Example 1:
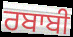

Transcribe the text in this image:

ਰਬਾਬੀ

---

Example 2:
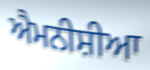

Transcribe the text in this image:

ਐਮਨੀਸ਼ੀਆ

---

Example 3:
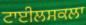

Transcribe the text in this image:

ਟਾਈਲਸਕਲਾ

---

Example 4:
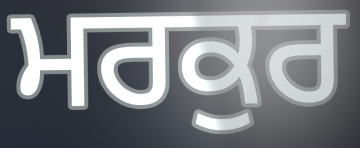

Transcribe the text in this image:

ਮਰਕੁਰ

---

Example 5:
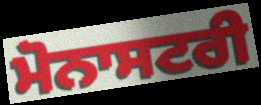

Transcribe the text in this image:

ਮੋਨਾਸਟਰੀ